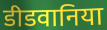
डीडवानिया